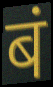
बं